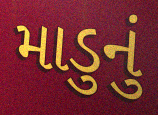
માડુનું